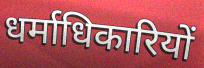
धर्माधिकारियों